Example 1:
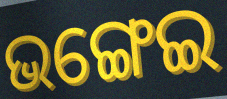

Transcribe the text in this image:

ଭଙ୍ଗେଇ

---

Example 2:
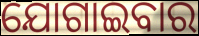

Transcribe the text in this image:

ଯୋଗାଇବାର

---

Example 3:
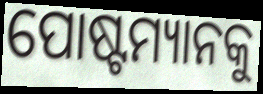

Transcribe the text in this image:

ପୋଷ୍ଟମ୍ୟାନକୁ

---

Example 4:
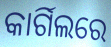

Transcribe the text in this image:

କାର୍ଗିଲରେ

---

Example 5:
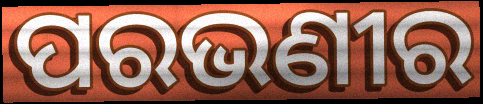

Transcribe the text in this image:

ପରଭଣୀର